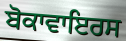
ਬੋਕਾਵਾਇਰਸ